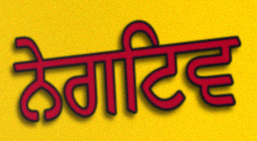
ਨੇਗਟਿਵ